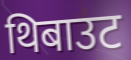
थिबाउट